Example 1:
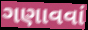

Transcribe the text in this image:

ગણાવવાં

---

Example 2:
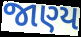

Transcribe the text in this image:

જાણ્ય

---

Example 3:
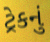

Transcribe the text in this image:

ટ્રેકનું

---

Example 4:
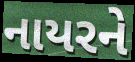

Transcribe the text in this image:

નાયરને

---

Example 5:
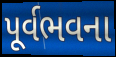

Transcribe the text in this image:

પૂર્વભવના